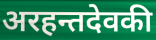
अरहन्तदेवकी